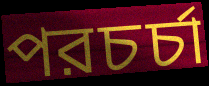
পরচর্চা